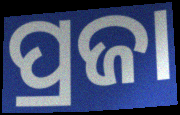
ପ୍ରଜା